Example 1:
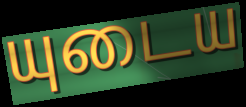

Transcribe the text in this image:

யுடைய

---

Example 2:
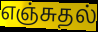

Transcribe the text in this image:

எஞ்சுதல்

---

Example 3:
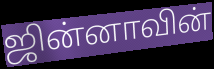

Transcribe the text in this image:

ஜின்னாவின்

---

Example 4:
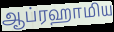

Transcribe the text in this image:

ஆப்ரஹாமிய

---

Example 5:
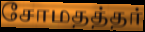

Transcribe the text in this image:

சோமதத்தர்